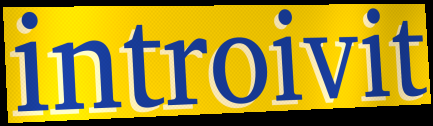
introivit